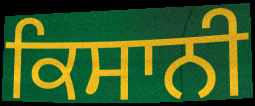
ਕਿਸਾਨੀ